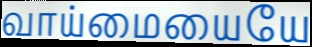
வாய்மையையே